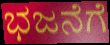
ಭಜನೆಗೆ